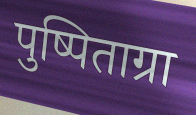
पुष्पिताग्रा